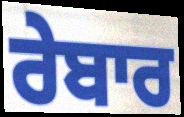
ਰੇਬਾਰ